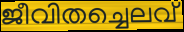
ജീവിതച്ചെലവ്